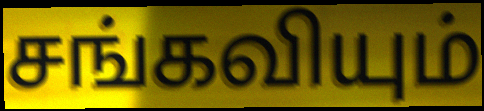
சங்கவியும்